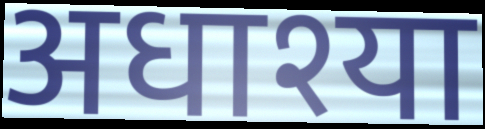
अधाश्या